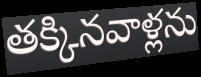
తక్కినవాళ్లను